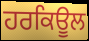
ਹਰਕਿਊਲ